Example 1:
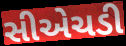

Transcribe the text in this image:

સીએચડી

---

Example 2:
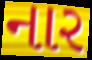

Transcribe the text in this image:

નાર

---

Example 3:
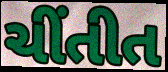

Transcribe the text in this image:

ચીંતીત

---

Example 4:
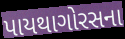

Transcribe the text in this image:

પાયથાગોરસના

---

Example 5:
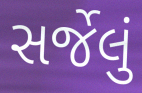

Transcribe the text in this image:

સર્જેલું